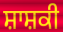
ਸ਼ਾਸ਼ਕੀ